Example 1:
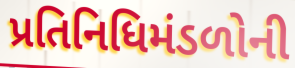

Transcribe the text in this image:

પ્રતિનિધિમંડળોની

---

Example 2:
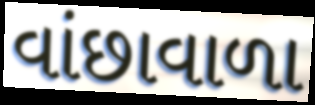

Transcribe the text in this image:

વાંછાવાળા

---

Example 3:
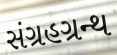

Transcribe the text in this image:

સંગ્રહગ્રન્થ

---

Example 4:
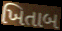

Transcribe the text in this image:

ખિતાબ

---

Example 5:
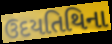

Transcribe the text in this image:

ઉદયતિથિના